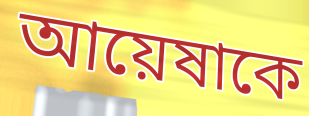
আয়েষাকে